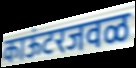
काऊंटरजवळ